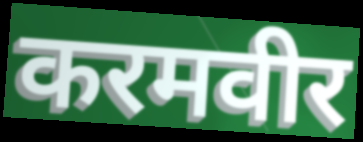
करमवीर